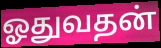
ஓதுவதன்